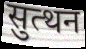
सुत्थन